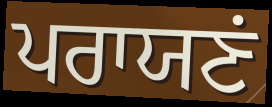
ਪਰਾਯਣਂ